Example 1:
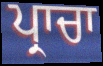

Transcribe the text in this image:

ਪ੍ਰਾਚਾ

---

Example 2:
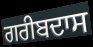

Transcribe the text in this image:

ਗਰੀਬਦਾਸ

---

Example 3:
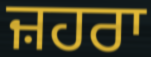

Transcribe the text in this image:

ਜ਼ਹਰਾ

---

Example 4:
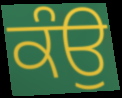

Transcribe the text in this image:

ਕੰਉ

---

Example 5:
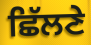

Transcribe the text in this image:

ਛਿੱਲਣੇ